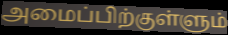
அமைப்பிற்குள்ளும்